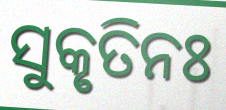
ସୁକୃତିନଃ